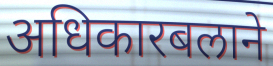
अधिकारबलाने